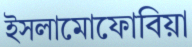
ইসলামোফোবিয়া